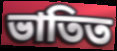
ভাতিত